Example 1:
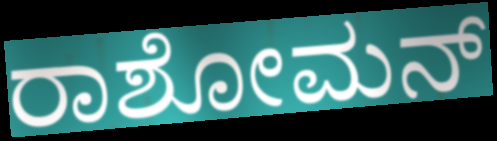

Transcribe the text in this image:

ರಾಶೋಮನ್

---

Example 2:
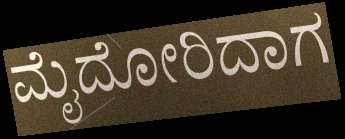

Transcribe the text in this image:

ಮೈದೋರಿದಾಗ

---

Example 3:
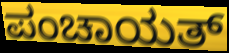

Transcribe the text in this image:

ಪಂಚಾಯತ್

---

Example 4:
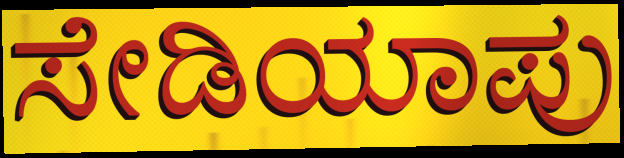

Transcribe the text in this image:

ಸೇಡಿಯಾಪು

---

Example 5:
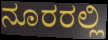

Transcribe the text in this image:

ನೂರರಲ್ಲಿ